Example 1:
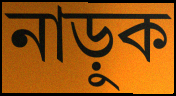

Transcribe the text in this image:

নাড়ুক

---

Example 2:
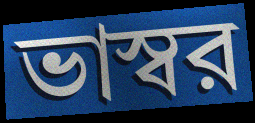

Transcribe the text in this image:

ভাস্বর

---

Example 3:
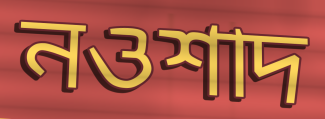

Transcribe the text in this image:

নওশাদ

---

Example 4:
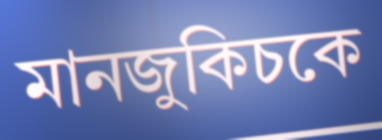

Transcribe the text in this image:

মানজুকিচকে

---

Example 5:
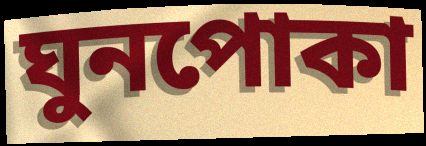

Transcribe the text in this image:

ঘুনপোকা